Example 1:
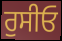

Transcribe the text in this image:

ਰੁਸੀਓ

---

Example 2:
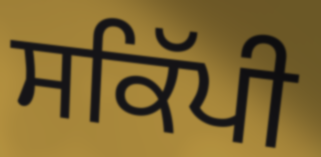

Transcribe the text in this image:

ਸਕਿੱਪੀ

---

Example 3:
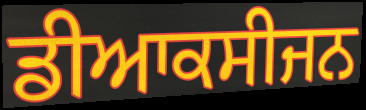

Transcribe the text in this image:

ਡੀਆਕਸੀਜਨ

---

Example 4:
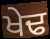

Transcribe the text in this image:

ਖੇਢ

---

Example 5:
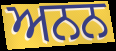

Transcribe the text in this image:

ਅਨਨ